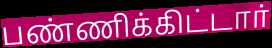
பண்ணிக்கிட்டார்